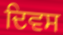
ਦਿਵਸ